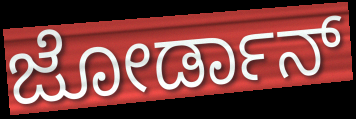
ಜೋರ್ಡಾನ್